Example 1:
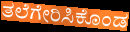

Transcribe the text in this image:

ತಲೆಗೇರಿಸಿಕೊಂಡ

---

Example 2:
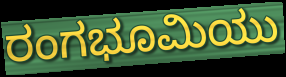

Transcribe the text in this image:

ರಂಗಭೂಮಿಯು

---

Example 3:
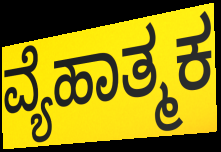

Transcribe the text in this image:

ವ್ಯೆಹಾತ್ಮಕ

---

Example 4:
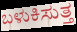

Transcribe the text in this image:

ಬಳುಕಿಸುತ್ತ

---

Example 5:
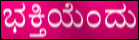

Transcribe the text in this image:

ಭಕ್ತಿಯೆಂದು